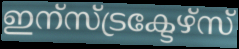
ഇന്സ്ട്രക്ടേഴ്സ്